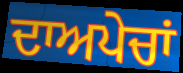
ਦਾਅਪੇਚਾਂ